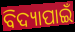
ବିଦ୍ୟାପାଇଁ